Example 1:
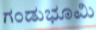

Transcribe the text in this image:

ಗಂಡುಭೂಮಿ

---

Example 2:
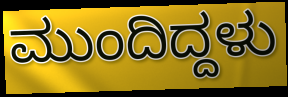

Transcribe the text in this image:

ಮುಂದಿದ್ದಳು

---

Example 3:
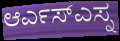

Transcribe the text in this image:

ಆರ್ಎಸ್ಎಸ್ನ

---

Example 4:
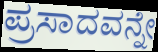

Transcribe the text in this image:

ಪ್ರಸಾದವನ್ನೇ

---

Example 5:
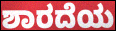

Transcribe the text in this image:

ಶಾರದೆಯ